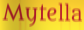
Mytella